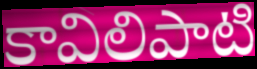
కావిలిపాటి